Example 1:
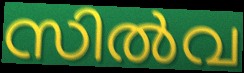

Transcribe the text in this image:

സിൽവ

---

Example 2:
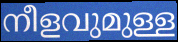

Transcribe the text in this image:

നീളവുമുള്ള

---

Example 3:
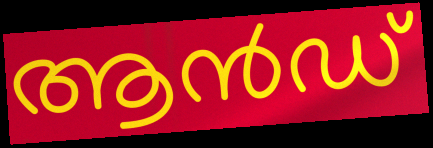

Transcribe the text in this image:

ആൻഡ്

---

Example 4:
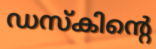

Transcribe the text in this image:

ഡസ്കിന്റെ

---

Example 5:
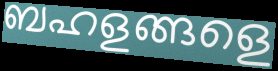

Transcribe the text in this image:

ബഹളങ്ങളെ